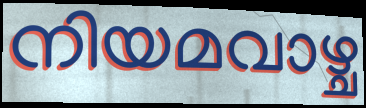
നിയമവാഴ്ച